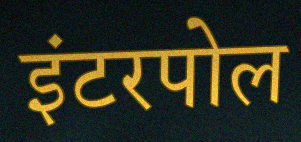
इंटरपोल